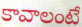
కావాలంటే